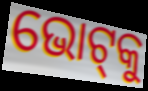
ଭୋଟ୍‍କୁ